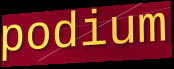
podium